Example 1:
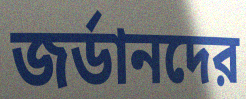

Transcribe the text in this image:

জর্ডানদের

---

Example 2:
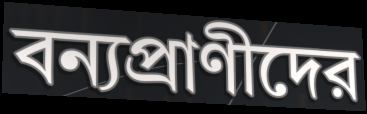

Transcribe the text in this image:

বন্যপ্রাণীদের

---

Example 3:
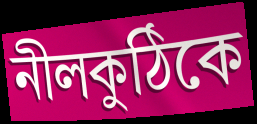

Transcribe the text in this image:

নীলকুঠিকে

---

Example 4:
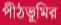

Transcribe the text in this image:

পীঠভূমির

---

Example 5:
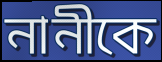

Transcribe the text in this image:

নানীকে